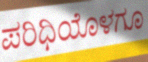
ಪರಿಧಿಯೊಳಗೂ